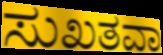
ಸುಖತವಾ